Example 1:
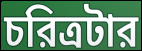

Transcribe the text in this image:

চরিত্রটার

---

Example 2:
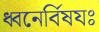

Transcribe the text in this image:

ধ্বনের্বিষযঃ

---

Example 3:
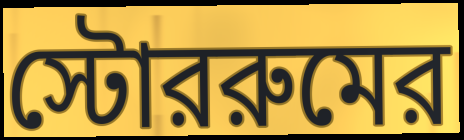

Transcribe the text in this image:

স্টোররুমের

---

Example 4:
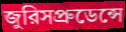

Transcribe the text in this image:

জুরিসপ্রুডেন্সে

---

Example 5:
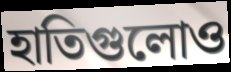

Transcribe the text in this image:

হাতিগুলোও